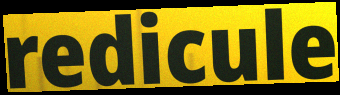
redicule